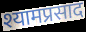
श्यामप्रसाद